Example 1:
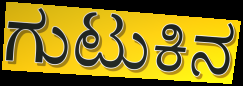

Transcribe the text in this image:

ಗುಟುಕಿನ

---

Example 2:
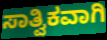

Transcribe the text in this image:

ಸಾತ್ವಿಕವಾಗಿ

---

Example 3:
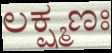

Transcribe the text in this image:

ಲಕ್ಷ್ಮಣಃ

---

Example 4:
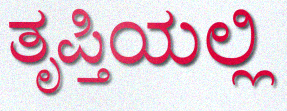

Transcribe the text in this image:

ತೃಪ್ತಿಯಲ್ಲಿ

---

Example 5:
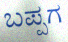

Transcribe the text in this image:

ಬಪ್ಪಗ